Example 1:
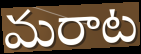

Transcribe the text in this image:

మరాట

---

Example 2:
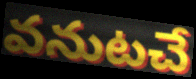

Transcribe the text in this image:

వనుటచే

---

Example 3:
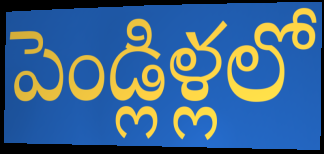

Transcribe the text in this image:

పెండ్లిళ్లలో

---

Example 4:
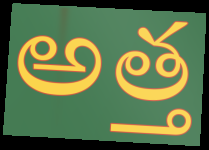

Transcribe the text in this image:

అత్త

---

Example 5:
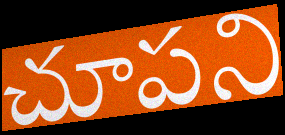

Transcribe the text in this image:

చూపని